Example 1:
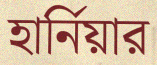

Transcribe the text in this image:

হার্নিয়ার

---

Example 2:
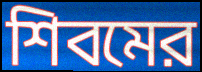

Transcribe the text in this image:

শিবমের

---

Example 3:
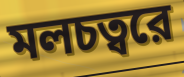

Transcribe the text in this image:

মলচত্বরে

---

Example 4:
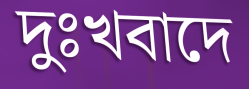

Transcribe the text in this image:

দুঃখবাদে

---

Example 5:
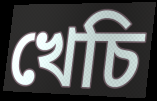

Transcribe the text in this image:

খেচি